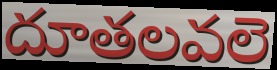
దూతలవలె